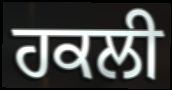
ਹਕਲੀ